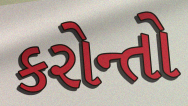
કરોન્તો